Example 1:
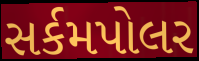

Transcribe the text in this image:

સર્કમપોલર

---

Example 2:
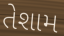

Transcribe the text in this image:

તેશામ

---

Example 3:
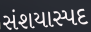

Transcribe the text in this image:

સંશયાસ્પદ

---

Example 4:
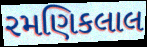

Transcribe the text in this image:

રમણિકલાલ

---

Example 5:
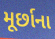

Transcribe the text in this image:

મૂર્છાના